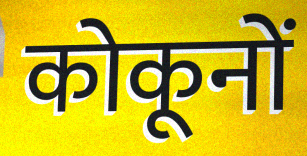
कोकूनों